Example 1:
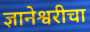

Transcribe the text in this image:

ज्ञानेश्वरीचा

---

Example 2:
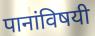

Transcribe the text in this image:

पानांविषयी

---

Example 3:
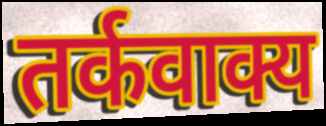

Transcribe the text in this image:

तर्कवाक्य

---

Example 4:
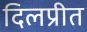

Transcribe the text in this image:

दिलप्रीत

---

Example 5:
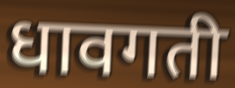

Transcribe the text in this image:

धावगती